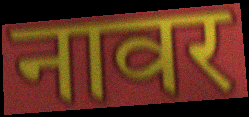
नावर